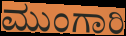
ಮುಂಗಾರಿ